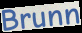
Brunn